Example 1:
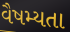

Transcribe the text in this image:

વૈષમ્યતા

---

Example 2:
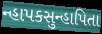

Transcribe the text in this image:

ન્હાપકસુન્હાપિતા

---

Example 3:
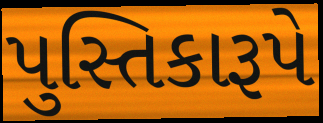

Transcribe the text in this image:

પુસ્તિકારૂપે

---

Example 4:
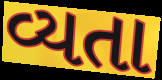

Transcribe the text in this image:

વ્યતા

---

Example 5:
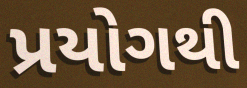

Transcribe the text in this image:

પ્રયોગથી